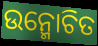
ଉନ୍ମୋଚିତ